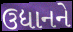
ઉદ્યાનને